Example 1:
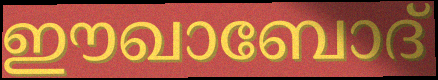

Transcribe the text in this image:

ഈഖാബോദ്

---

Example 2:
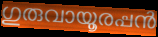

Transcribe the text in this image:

ഗുരുവായൂരപ്പൻ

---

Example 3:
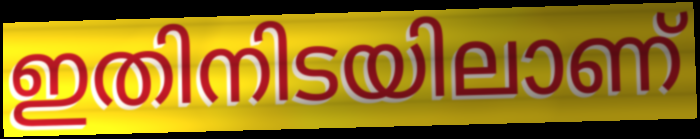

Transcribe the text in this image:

ഇതിനിടയിലാണ്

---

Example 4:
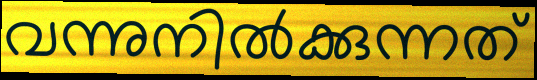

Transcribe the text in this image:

വന്നുനിൽക്കുന്നത്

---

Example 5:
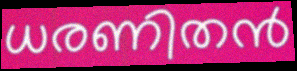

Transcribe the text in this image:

ധരണിതൻ